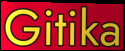
Gitika